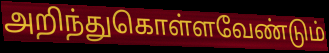
அறிந்துகொள்ளவேண்டும்